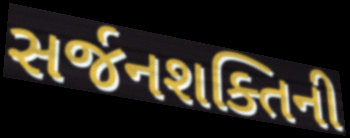
સર્જનશક્તિની